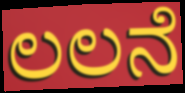
ಲಲನೆ